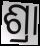
ଶ୍ରା